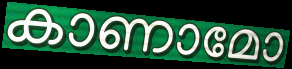
കാണാമോ